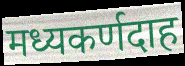
मध्यकर्णदाह